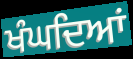
ਖੰਘਦਿਆਂ